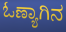
ಓಣ್ಯಾಗಿನ